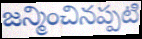
జన్మించినప్పటి